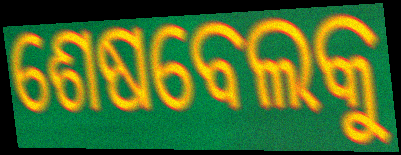
ଶେଷବେଲକୁ